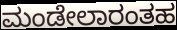
ಮಂಡೇಲಾರಂತಹ